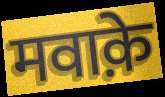
मवाक़े